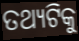
ତଥ୍ୟଟିକୁ